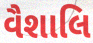
વૈશાલિ